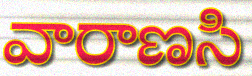
వారాణసి